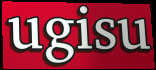
ugisu